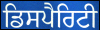
ਡਿਸਪੈਰਿਟੀ